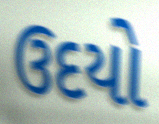
ઉદયો